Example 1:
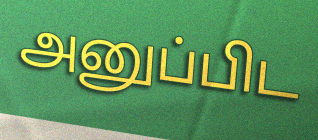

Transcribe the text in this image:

அனுப்பிட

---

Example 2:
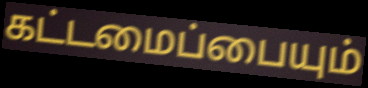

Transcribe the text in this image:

கட்டமைப்பையும்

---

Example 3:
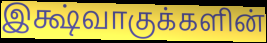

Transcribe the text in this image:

இக்ஷ்வாகுக்களின்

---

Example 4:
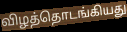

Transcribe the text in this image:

விழத்தொடங்கியது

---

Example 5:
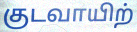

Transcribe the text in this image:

குடவாயிற்